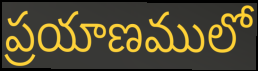
ప్రయాణములో